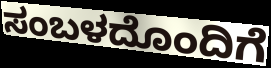
ಸಂಬಳದೊಂದಿಗೆ